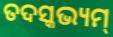
ତଦସ୍କଭ୍ୟମ୍